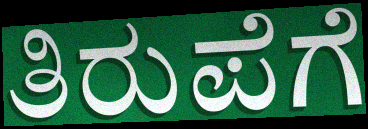
ತಿರುಪೆಗೆ